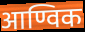
आण्विक